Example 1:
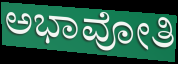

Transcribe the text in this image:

ಅಭಾವೋತಿ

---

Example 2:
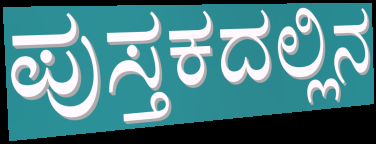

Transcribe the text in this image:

ಪುಸ್ತಕದಲ್ಲಿನ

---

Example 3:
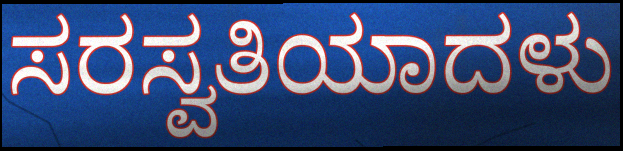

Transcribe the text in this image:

ಸರಸ್ವತಿಯಾದಳು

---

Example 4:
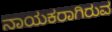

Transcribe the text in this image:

ನಾಯಕರಾಗಿರುವ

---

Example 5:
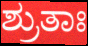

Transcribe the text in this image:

ಶ್ರುತಾಃ